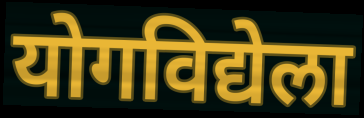
योगविद्येला